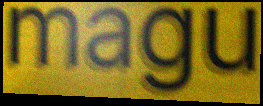
magu